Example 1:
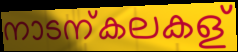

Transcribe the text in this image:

നാടന്കലകള്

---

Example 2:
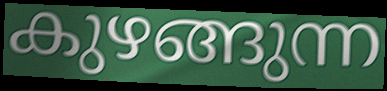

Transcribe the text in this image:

കുഴങ്ങുന്ന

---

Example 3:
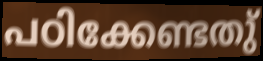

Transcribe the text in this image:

പഠിക്കേണ്ടതു്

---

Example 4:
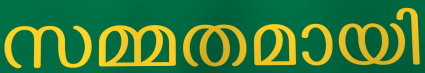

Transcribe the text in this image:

സമ്മതമായി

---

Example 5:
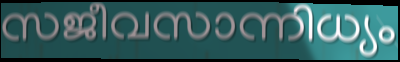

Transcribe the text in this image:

സജീവസാന്നിധ്യം